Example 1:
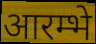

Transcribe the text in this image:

आरम्भे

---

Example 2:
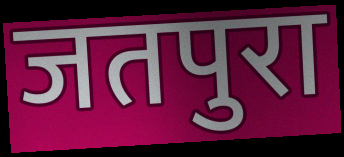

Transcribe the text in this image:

जतपुरा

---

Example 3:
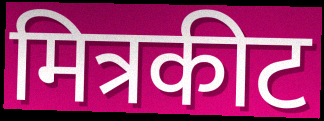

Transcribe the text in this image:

मित्रकीट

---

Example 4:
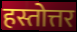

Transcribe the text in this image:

हस्तोत्तर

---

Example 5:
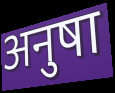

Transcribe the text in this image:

अनुषा